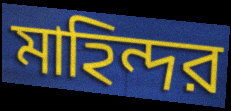
মাহিন্দর